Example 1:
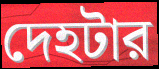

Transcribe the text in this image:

দেহটার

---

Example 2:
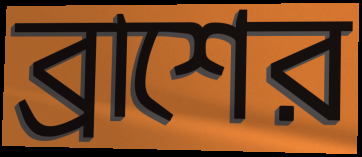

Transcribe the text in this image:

ব্রাশের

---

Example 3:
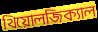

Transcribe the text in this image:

থিয়োলজিক্যাল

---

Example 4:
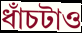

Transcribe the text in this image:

ধাঁচটাও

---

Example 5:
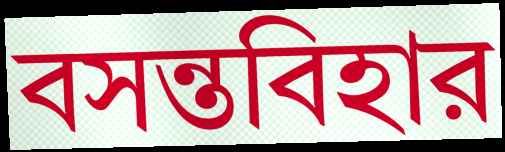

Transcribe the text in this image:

বসন্তবিহার